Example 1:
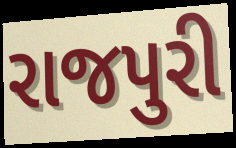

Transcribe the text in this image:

રાજપુરી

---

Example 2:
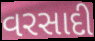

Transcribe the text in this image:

વરસાદી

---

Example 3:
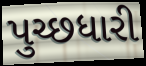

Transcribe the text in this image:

પુચ્છધારી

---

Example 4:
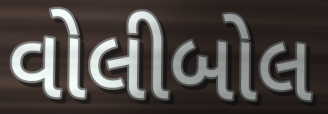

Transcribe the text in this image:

વોલીબોલ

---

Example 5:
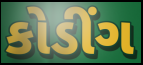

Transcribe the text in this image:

કોડીંગ